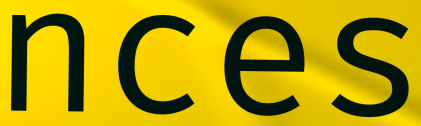
nces